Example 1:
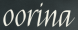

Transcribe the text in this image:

oorina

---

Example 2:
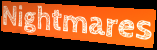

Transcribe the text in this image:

Nightmares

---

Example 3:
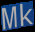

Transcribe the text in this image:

Mk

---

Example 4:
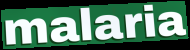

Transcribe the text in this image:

malaria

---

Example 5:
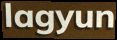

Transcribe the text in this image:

lagyun